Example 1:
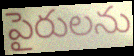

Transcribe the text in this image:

పైరులను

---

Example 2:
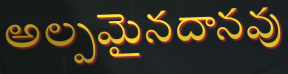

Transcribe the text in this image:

అల్పమైనదానవు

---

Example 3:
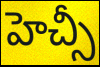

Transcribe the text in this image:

హెచ్సీ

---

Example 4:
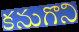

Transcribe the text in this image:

కనుగొని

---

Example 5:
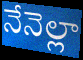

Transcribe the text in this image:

నేనెల్లా